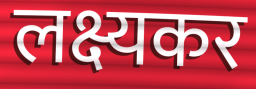
लक्ष्यकर